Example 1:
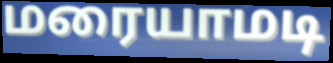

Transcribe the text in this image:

மரையாமடி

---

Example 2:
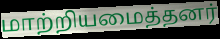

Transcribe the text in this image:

மாற்றியமைத்தனர்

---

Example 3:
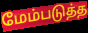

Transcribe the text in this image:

மேம்படுத்த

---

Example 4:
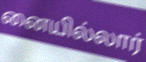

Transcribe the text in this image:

னையில்லார்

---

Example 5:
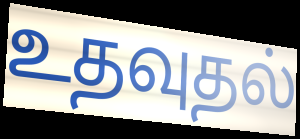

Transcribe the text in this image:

உதவுதல்